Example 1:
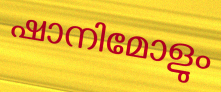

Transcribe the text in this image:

ഷാനിമോളും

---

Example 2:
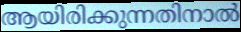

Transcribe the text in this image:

ആയിരിക്കുന്നതിനാൽ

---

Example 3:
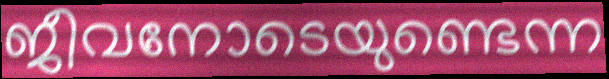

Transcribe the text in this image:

ജീവനോടെയുണ്ടെന്ന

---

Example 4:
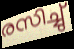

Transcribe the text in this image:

രസിച്ചു്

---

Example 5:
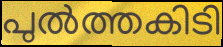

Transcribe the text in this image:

പുൽത്തകിടി